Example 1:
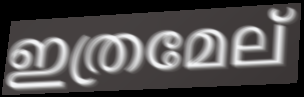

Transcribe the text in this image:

ഇത്രമേല്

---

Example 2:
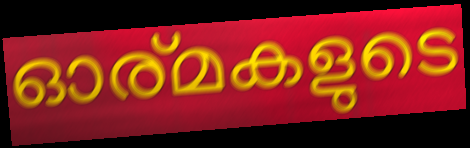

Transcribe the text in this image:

ഓര്മകളുടെ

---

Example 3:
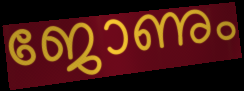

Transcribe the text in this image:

ജോണും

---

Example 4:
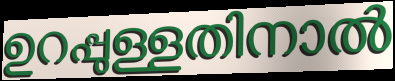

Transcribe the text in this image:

ഉറപ്പുള്ളതിനാൽ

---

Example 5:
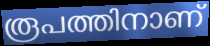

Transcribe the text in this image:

രൂപത്തിനാണ്